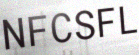
NFCSFL